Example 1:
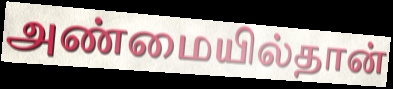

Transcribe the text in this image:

அண்மையில்தான்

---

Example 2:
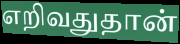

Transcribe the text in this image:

எறிவதுதான்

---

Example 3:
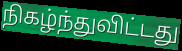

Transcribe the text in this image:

நிகழ்ந்துவிட்டது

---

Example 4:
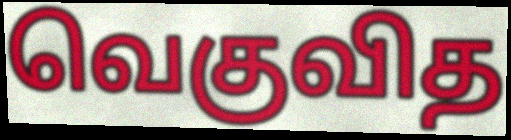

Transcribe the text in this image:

வெகுவித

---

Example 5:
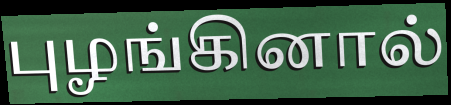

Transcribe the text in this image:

புழங்கினால்